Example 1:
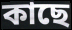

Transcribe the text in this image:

কাছে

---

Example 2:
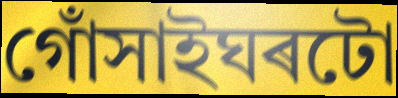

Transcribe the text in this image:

গোঁসাইঘৰটো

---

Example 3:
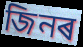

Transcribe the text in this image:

জিনৰ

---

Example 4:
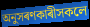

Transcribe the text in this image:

অনুসৰণকাৰীসকলে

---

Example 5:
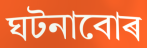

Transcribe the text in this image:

ঘটনাবোৰ